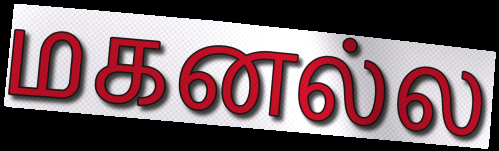
மகனல்ல